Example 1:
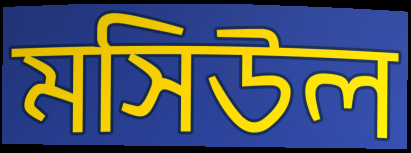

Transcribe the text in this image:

মসিউল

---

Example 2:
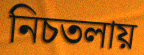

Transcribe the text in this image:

নিচতলায়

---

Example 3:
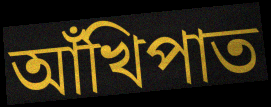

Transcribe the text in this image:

আঁখিপাত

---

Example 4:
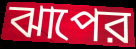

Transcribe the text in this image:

ঝাপের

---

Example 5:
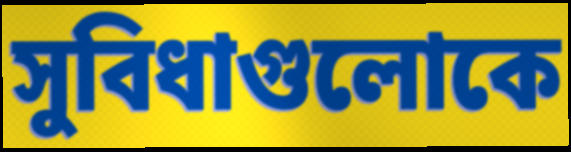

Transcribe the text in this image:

সুবিধাগুলোকে